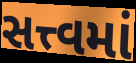
સત્ત્વમાં